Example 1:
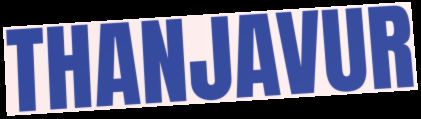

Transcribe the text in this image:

THANJAVUR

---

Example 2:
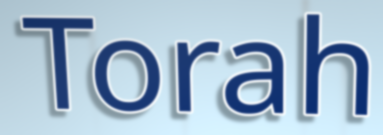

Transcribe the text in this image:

Torah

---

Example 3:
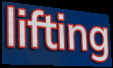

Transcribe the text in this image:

lifting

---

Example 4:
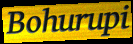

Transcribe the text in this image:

Bohurupi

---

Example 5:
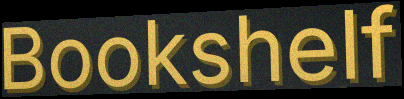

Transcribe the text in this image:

Bookshelf